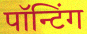
पॉन्टिंग